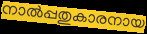
നാൽപ്പതുകാരനായ